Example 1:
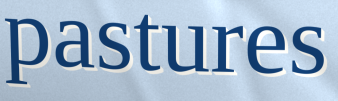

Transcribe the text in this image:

pastures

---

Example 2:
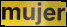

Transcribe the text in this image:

mujer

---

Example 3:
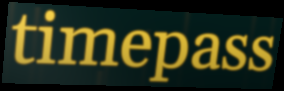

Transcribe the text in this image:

timepass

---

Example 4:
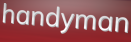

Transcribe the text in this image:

handyman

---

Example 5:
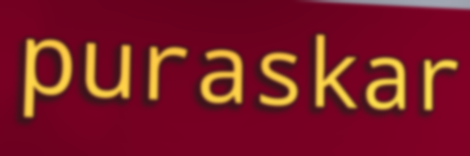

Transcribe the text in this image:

puraskar